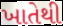
ખાતેથી